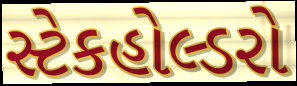
સ્ટેકહોલ્ડરો